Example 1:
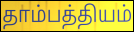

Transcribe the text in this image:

தாம்பத்தியம்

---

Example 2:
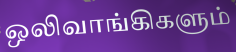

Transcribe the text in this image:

ஒலிவாங்கிகளும்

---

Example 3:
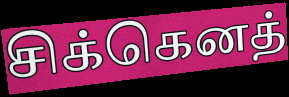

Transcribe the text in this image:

சிக்கெனத்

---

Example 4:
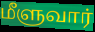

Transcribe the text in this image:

மீளுவார்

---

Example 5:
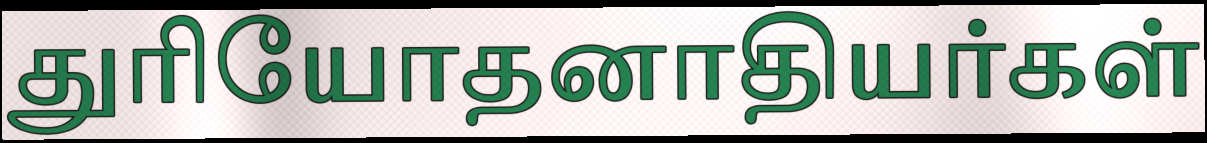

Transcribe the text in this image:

துரியோதனாதியர்கள்